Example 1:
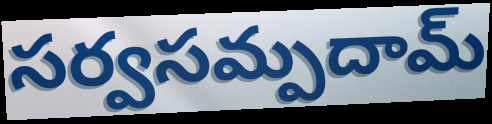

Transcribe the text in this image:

సర్వసమ్పదామ్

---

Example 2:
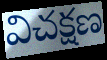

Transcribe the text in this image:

విచక్షణ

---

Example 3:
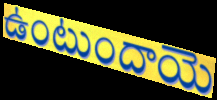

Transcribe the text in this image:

ఉంటుందాయె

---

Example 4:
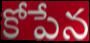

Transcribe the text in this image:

కోపేన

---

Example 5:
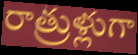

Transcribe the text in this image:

రాత్రుళ్లుగా